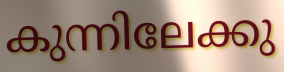
കുന്നിലേക്കു